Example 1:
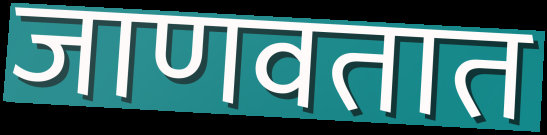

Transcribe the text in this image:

जाणवतात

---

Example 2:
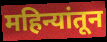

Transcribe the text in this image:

महिन्यांतून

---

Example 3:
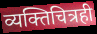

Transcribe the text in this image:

व्यक्तिचित्रही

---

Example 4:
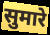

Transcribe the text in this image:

सुमारे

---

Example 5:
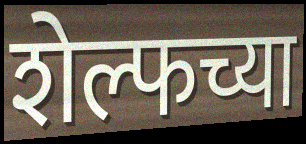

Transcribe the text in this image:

शेल्फच्या